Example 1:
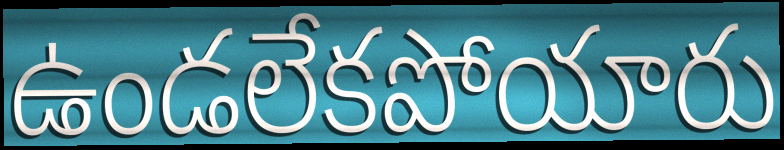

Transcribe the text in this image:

ఉండలేకపోయారు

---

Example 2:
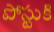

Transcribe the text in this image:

పోస్టుకి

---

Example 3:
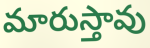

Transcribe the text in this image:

మారుస్తావు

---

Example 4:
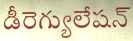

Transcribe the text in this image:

డీరెగ్యులేషన్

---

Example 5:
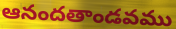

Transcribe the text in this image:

ఆనందతాండవము